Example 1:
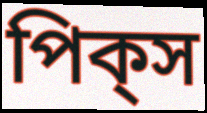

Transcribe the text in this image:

পিক্‌স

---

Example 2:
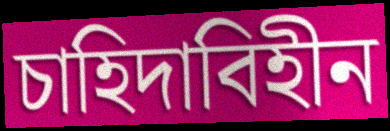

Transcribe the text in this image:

চাহিদাবিহীন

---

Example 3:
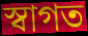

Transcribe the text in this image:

স্বাগত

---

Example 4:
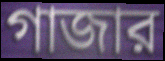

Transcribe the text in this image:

গাজার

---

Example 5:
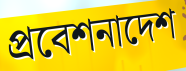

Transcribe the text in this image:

প্রবেশনাদেশ